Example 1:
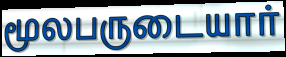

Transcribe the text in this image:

மூலபருடையார்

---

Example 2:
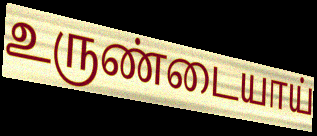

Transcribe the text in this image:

உருண்டையாய்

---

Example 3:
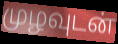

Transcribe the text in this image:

முழவுடன்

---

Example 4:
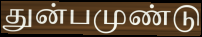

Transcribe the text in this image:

துன்பமுண்டு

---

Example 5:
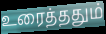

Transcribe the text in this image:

உரைத்ததும்